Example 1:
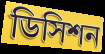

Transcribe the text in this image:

ডিসিশন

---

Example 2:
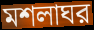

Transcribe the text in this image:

মশলাঘর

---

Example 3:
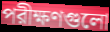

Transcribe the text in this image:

পরীক্ষণগুলো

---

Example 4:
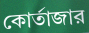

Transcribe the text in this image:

কোর্তাজার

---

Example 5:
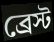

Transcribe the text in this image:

ব্রেস্ট